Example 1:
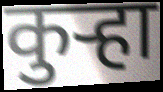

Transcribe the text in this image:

कुऱ्हा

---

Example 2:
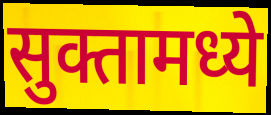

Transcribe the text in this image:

सुक्तामध्ये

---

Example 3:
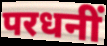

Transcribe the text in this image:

परधनीं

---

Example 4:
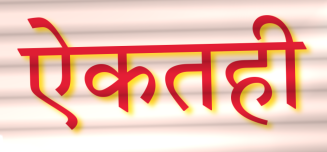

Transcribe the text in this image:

ऐकतही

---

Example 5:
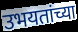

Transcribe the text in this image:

उभयतांच्या